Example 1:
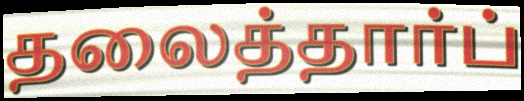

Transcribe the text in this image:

தலைத்தார்ப்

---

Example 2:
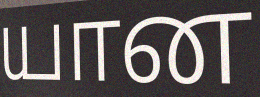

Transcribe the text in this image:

யான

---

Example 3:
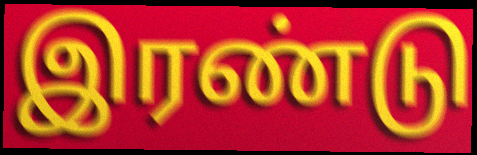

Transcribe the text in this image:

இரண்டு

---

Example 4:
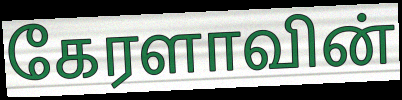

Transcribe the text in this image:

கேரளாவின்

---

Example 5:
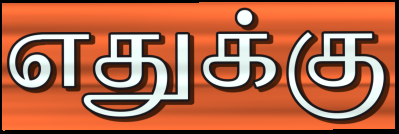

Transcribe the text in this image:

எதுக்கு